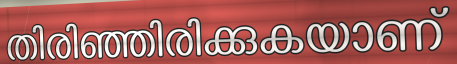
തിരിഞ്ഞിരിക്കുകയാണ്